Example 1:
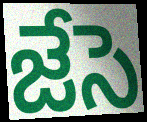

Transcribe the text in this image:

జేసె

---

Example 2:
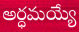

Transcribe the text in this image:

అర్ధమయ్యే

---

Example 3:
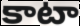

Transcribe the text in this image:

కాటా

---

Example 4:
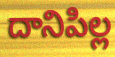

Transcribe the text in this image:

దానిపిల్ల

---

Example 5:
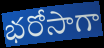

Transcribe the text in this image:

భరోసాగా